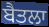
ਬੈਤਲਾ